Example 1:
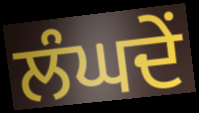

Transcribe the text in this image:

ਲੰਘਦੇਂ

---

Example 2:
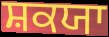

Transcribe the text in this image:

ਸ਼ਕਯਾ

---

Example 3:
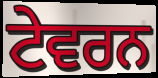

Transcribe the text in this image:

ਟੇਵਰਨ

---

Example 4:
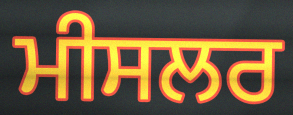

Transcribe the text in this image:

ਮੀਸਲਰ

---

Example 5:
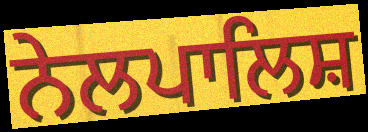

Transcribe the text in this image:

ਨੇਲਪਾਲਿਸ਼